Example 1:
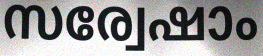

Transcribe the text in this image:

സര്വേഷാം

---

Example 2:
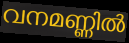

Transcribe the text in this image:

വനമണ്ണിൽ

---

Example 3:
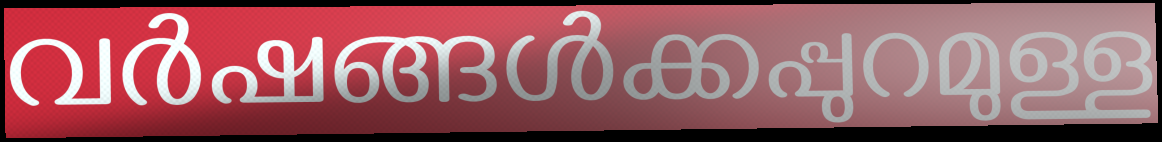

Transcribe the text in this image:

വർഷങ്ങൾക്കപ്പുറമുള്ള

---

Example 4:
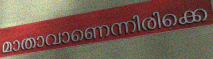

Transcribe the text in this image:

മാതാവാണെന്നിരിക്കെ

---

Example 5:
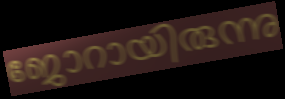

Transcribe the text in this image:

ജോറായിരുന്നു